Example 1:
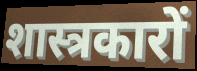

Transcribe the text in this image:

शास्त्रकारों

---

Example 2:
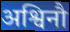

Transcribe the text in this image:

अश्विनौ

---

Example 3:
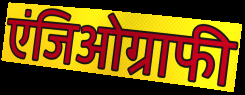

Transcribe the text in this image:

एंजिओग्राफी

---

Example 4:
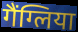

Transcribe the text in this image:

गैंग्लिया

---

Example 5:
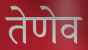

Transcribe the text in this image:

तेणेव